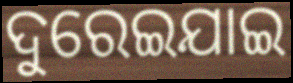
ଦୁରେଇଯାଇ